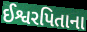
ઈશ્વરપિતાના